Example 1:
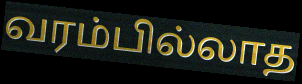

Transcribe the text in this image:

வரம்பில்லாத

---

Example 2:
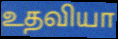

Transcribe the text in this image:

உதவியா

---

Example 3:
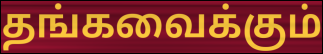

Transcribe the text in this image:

தங்கவைக்கும்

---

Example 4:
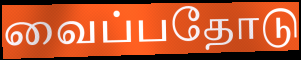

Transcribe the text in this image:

வைப்பதோடு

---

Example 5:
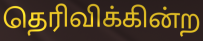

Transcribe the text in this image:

தெரிவிக்கின்ற